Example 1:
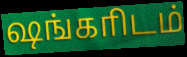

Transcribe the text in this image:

ஷங்கரிடம்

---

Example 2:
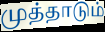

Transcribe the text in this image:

முத்தாடும்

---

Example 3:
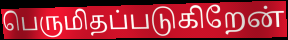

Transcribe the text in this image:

பெருமிதப்படுகிறேன்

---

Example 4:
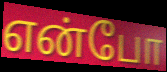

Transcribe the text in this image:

என்போ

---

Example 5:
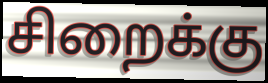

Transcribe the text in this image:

சிறைக்கு